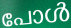
പോൾ